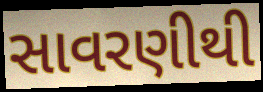
સાવરણીથી